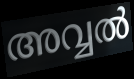
അവ്വൽ